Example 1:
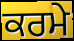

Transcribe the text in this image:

ਕਰਮੇ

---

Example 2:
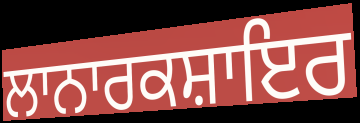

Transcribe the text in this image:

ਲਾਨਾਰਕਸ਼ਾਇਰ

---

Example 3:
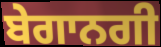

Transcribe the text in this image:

ਬੇਗਾਨਗੀ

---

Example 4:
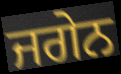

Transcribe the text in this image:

ਜਗੇਨ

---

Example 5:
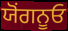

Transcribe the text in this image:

ਯੋਂਗਨੂਓ